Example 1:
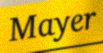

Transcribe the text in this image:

Mayer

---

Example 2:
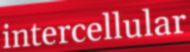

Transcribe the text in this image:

intercellular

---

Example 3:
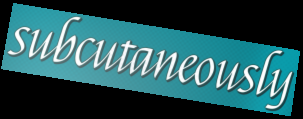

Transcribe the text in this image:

subcutaneously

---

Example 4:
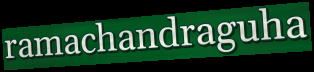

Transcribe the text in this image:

ramachandraguha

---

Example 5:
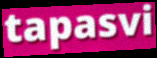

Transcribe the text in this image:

tapasvi